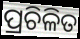
ପ୍ରଚିଳିତ